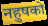
नहुषको